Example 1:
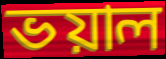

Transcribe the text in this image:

ভয়াল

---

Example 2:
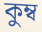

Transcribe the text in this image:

কুম্ব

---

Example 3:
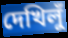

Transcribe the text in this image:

দেখিলুঁ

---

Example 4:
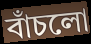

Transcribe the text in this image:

বাঁচলো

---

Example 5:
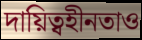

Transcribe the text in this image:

দায়িত্বহীনতাও